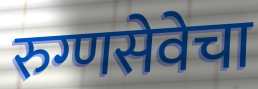
रुग्णसेवेचा